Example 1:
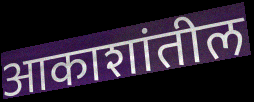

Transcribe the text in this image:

आकाशांतील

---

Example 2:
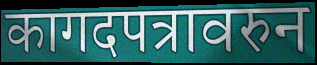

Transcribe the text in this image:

कागदपत्रावरुन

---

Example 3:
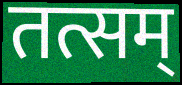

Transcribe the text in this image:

तत्सम्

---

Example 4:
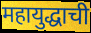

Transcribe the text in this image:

महायुद्धाची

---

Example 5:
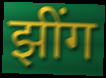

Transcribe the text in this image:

झींग